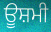
ਊਸ਼ਮੀ